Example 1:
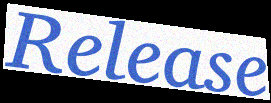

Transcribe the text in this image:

Release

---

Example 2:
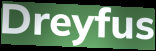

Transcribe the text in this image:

Dreyfus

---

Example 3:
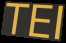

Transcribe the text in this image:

TEI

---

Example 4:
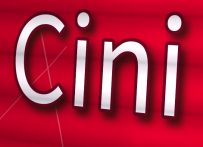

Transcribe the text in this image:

Cini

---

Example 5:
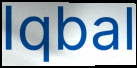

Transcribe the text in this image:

Iqbal